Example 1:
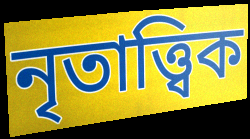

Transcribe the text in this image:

নৃতাত্ত্বিক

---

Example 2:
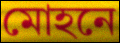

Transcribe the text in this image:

মোহনে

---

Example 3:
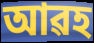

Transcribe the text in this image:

আৱহ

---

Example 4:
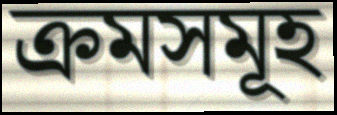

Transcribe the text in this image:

ক্ৰমসমূহ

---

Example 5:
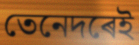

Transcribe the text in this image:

তেনেদৰেই